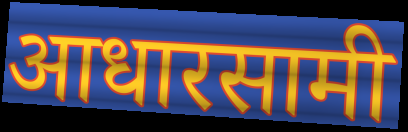
आधारसामी